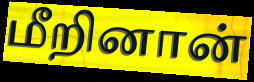
மீறினான்